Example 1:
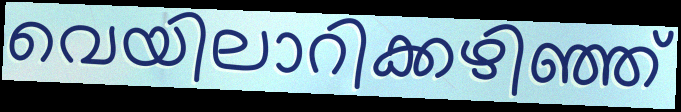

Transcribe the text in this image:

വെയിലാറിക്കഴിഞ്ഞ്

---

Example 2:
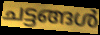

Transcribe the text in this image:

ചട്ടങ്ങൾ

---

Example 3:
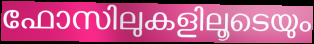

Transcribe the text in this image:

ഫോസിലുകളിലൂടെയും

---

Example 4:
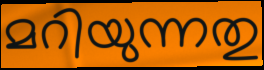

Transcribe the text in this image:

മറിയുന്നതു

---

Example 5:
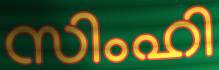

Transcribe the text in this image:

സിംഹി